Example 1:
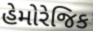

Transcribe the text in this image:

હેમોરેજિક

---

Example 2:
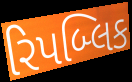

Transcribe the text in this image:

રિપબ્લિક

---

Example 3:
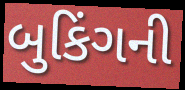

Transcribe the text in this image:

બુકિંગની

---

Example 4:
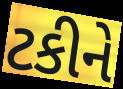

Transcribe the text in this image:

ટકીને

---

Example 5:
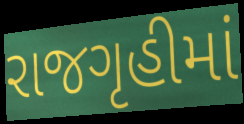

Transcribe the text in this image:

રાજગૃહીમાં